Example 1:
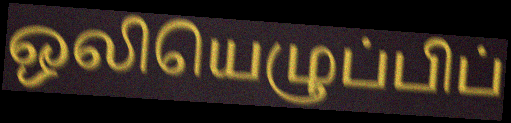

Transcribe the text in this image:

ஒலியெழுப்பிப்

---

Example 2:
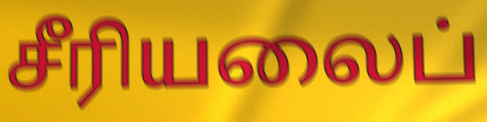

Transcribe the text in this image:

சீரியலைப்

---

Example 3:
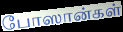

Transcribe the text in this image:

போஸான்கள்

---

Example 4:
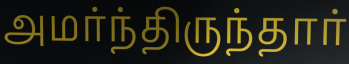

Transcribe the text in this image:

அமர்ந்திருந்தார்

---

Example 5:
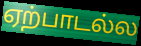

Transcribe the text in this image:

ஏற்பாடல்ல